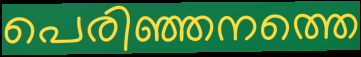
പെരിഞ്ഞനത്തെ